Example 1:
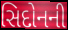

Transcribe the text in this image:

સિદોનની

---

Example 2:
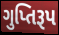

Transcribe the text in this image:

ગુપ્તિરૂપ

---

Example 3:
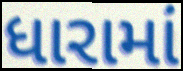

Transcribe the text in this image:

ધારામાં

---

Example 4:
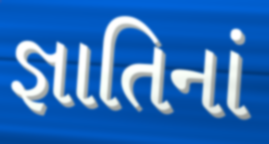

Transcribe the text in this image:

જ્ઞાતિનાં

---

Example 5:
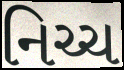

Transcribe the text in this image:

નિચ્ચ